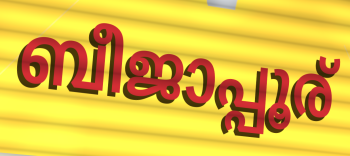
ബീജാപ്പൂര്